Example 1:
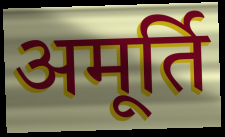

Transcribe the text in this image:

अमूर्ति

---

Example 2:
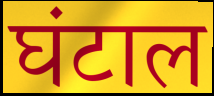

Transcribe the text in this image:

घंटाल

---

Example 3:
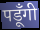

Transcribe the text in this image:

पडूँगी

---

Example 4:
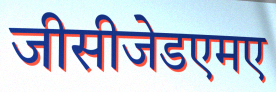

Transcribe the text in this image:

जीसीजेडएमए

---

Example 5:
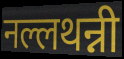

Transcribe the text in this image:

नल्लथन्नी